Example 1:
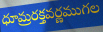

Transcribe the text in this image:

ధూమ్రరక్తవర్ణముగల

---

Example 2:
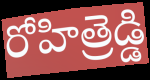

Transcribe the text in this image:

రోహిత్రెడ్డి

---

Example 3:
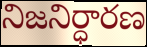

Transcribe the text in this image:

నిజనిర్ధారణ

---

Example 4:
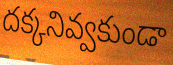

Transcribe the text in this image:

దక్కనివ్వకుండా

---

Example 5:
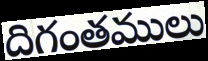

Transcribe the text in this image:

దిగంతములు